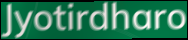
Jyotirdharo